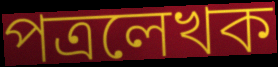
পত্রলেখক